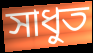
সাধুত